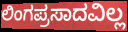
ಲಿಂಗಪ್ರಸಾದವಿಲ್ಲ